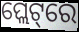
ପ୍ଲେଟ୍‌ରେ